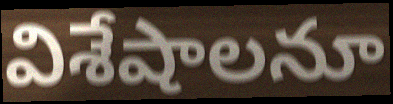
విశేషాలనూ